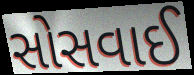
સોસવાઈ